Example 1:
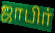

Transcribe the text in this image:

ஜாபிர்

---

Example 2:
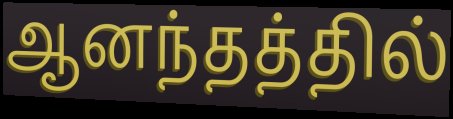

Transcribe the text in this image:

ஆனந்தத்தில்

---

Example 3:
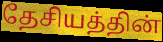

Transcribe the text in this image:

தேசியத்தின்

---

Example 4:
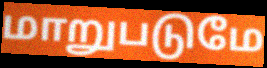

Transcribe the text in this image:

மாறுபடுமே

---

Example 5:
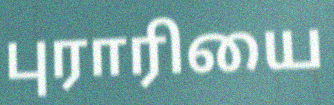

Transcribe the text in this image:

புராரியை